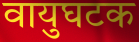
वायुघटक